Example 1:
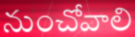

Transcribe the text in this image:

నుంచోవాలి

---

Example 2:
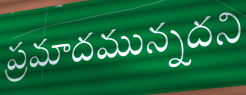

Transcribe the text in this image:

ప్రమాదమున్నదని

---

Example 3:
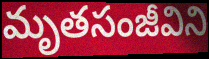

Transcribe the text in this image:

మృతసంజీవిని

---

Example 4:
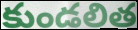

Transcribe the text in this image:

కుండలిత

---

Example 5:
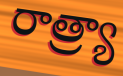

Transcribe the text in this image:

రాత్ర్యా